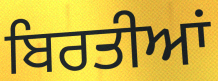
ਬਿਰਤੀਆਂ